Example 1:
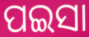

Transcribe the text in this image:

ପଇସା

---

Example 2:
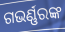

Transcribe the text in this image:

ଗଭର୍ଣ୍ଣରଙ୍କ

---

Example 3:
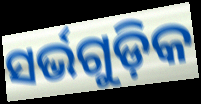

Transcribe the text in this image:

ସର୍ଭଗୁଡ଼ିକ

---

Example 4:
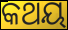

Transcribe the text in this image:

କଥୟ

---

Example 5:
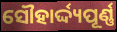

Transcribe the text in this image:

ସୌହାର୍ଦ୍ଦ୍ୟପୂର୍ଣ୍ଣ